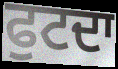
ਫੁਟਦਾ